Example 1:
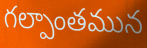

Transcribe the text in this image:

గల్పాంతమున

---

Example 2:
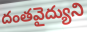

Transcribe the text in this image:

దంతవైద్యుని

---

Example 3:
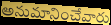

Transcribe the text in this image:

అనుమానించేవారు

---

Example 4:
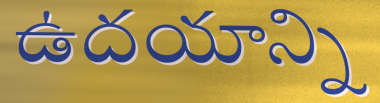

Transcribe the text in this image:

ఉదయాన్ని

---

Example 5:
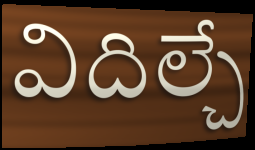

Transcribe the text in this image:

విదిల్చే